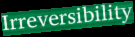
Irreversibility